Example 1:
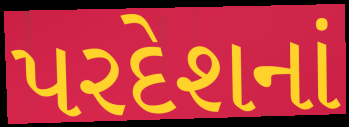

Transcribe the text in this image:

પરદેશનાં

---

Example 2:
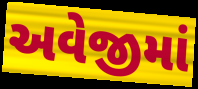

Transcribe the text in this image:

અવેજીમાં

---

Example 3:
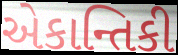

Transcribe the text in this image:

એકાન્તિકી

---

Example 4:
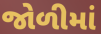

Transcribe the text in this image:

જોળીમાં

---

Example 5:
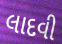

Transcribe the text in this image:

લાદવી